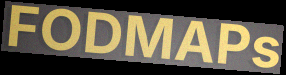
FODMAPs